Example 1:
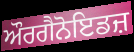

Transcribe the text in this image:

ਔਰਗੈਨੋਇਡਜ਼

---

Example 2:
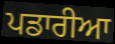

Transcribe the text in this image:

ਪਡਾਰੀਆ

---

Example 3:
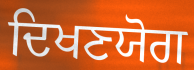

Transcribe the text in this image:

ਦਿਖਣਯੋਗ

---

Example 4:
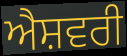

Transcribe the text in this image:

ਐਸ਼ਵਰੀ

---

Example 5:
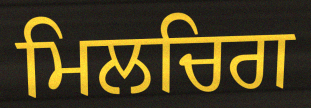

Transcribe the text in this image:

ਮਿਲਚਿਗ